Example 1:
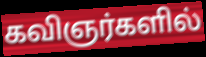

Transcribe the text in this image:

கவிஞர்களில்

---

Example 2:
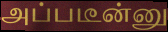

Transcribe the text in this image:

அப்படீன்னு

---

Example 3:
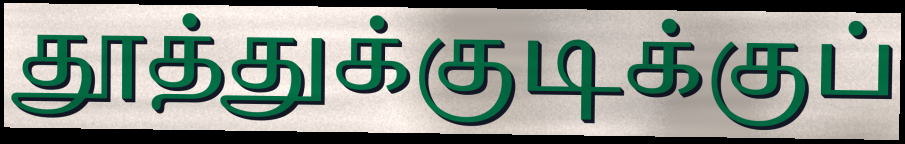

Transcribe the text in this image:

தூத்துக்குடிக்குப்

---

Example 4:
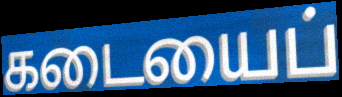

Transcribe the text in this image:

கடையைப்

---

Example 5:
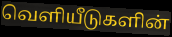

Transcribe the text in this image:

வெளியீடுகளின்